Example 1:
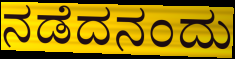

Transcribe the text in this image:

ನಡೆದನಂದು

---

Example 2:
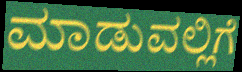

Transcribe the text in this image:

ಮಾಡುವಲ್ಲಿಗೆ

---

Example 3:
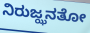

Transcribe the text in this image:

ನಿರುಜ್ಝನತೋ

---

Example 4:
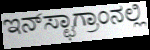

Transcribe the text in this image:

ಇನ್‌ಸ್ಟಾಗ್ರಾಂನಲ್ಲಿ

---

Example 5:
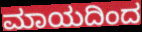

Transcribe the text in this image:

ಮಾಯದಿಂದ